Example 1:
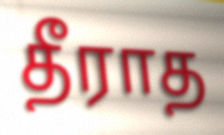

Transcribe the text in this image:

தீராத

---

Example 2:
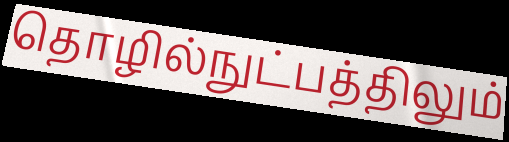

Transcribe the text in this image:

தொழில்நுட்பத்திலும்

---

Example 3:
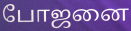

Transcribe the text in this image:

போஜனை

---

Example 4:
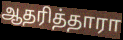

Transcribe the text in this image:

ஆதரித்தாரா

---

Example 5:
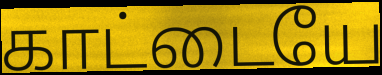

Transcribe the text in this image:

காட்டையே